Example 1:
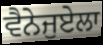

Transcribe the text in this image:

ਵੈਨੇਜੁਏਲਾ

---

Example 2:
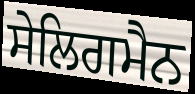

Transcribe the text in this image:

ਸੇਲਿਗਮੈਨ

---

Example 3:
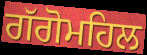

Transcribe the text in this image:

ਗੱਗੋਮਹਿਲ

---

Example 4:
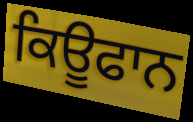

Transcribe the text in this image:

ਕਿਊਫਾਨ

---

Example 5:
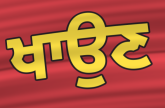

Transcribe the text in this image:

ਖਾਉਣ